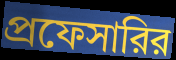
প্রফেসারির